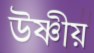
উষ্ণীয়